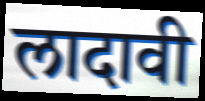
लादावी